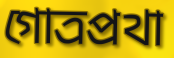
গোত্রপ্রথা